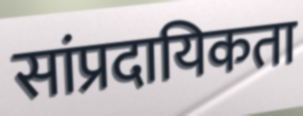
सांप्रदायिकता